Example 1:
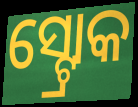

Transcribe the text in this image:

ସ୍ଟ୍ରୋକ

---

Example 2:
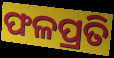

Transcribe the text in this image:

ଫଳପ୍ରତି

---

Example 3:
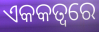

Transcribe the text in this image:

ଏକକତ୍ୱରେ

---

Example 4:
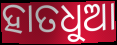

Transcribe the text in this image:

ହାତଧୁଆ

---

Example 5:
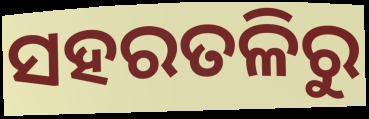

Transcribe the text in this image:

ସହରତଳିରୁ